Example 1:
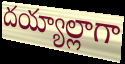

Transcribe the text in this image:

దయ్యాల్లాగా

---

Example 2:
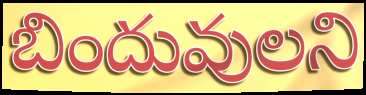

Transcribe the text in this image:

బిందువులని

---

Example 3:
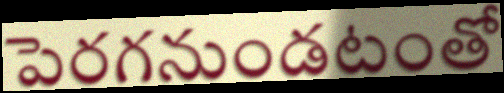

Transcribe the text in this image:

పెరగనుండటంతో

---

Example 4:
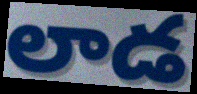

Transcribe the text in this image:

లాడ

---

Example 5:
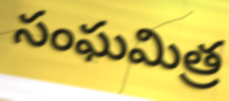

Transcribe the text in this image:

సంఘమిత్ర